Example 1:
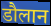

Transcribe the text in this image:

डौलान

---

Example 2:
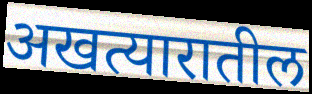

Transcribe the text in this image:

अखत्यारातील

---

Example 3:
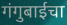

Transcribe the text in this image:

गंगुबाईचा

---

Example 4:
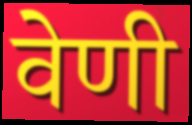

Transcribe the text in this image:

वेणी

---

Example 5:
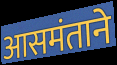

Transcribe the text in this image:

आसमंताने